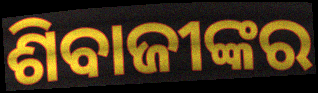
ଶିବାଜୀଙ୍କର